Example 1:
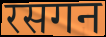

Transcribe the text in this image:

रसगन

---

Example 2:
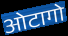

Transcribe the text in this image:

ओटागो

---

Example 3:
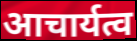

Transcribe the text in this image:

आचार्यत्व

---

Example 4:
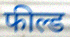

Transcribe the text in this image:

फील्‍ड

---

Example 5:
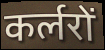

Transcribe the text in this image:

कर्लरों